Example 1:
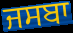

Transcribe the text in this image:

ਜਸਬਾ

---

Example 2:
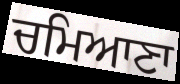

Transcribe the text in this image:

ਚਮਿਆਣਾ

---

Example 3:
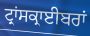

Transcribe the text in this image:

ਟ੍ਰਾਂਸਕ੍ਰਾਈਬਰਾਂ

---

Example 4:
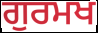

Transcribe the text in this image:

ਗੁਰਮਖ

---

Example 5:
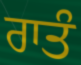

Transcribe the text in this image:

ਰਾਤੰ